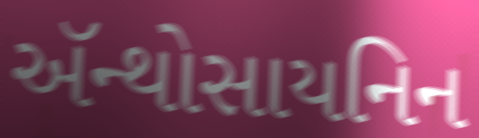
ઍન્થોસાયનિન